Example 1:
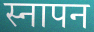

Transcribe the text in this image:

स्नापन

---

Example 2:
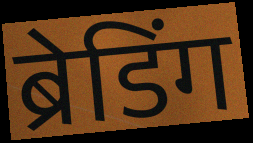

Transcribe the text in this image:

ब्रेडिंग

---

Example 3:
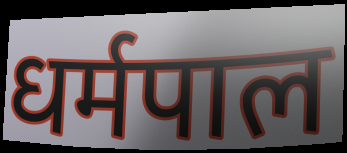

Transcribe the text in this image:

धर्मपाल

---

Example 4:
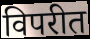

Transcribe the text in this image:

विपरीत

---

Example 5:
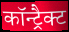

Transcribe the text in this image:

कॉन्ट्रैक्ट